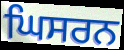
ਘਿਸਰਨ